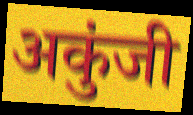
अकुंजी